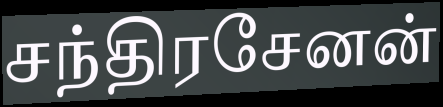
சந்திரசேனன்